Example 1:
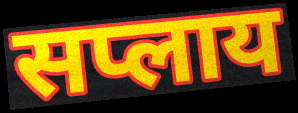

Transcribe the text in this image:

सप्लाय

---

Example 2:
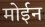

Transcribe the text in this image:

मोईन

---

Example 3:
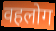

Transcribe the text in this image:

वहलोग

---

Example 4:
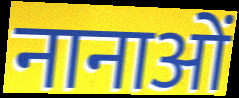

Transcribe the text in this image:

नानाओं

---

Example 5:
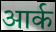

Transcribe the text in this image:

आर्क